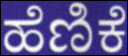
ಹೆಣಿಕೆ